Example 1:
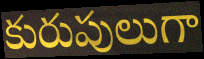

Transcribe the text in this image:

కురుపులుగా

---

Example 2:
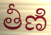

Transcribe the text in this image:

తీణి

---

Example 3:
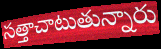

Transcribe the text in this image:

సత్తాచాటుతున్నారు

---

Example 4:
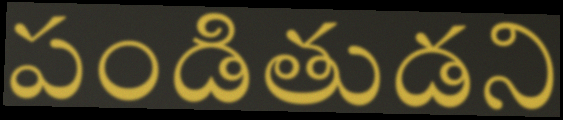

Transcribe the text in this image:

పండితుడని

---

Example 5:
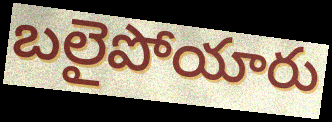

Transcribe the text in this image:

బలైపోయారు